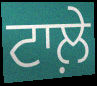
ਟਾਲ਼ੇ